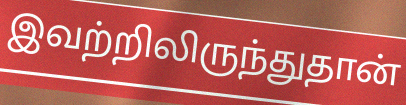
இவற்றிலிருந்துதான்